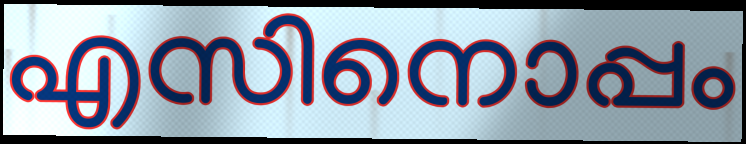
എസിനൊപ്പം